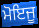
ਮੋਇਜੂ